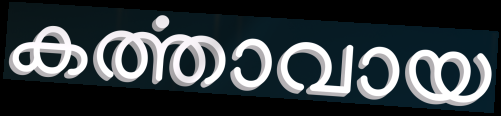
കൎത്താവായ